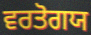
ਵਰਤੋਗਯ